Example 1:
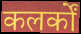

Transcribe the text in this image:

कलर्कों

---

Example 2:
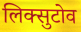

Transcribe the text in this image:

लिक्सुटोव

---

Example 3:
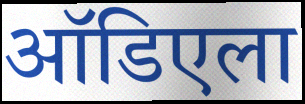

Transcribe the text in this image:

ऑडिएला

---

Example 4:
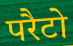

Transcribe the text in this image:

परैटो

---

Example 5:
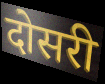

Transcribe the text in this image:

दोसरी